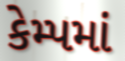
કેમ્પમાં